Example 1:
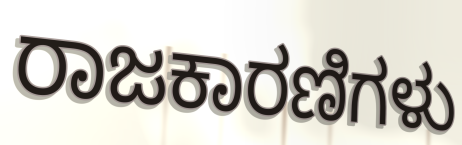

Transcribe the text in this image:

ರಾಜಕಾರಣಿಗಳು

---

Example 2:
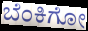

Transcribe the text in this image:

ಬೆಂಕಿಗೋ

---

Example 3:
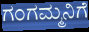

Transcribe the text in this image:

ಗಂಗಮ್ಮನಿಗೆ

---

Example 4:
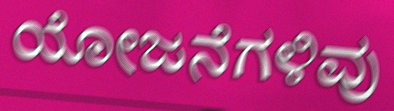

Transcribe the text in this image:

ಯೋಜನೆಗಳಿವು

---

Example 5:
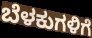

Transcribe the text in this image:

ಬೆಳಕುಗಳಿಗೆ